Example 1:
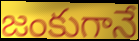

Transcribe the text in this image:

జంకుగానే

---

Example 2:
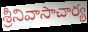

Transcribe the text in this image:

శ్రీనివాసాచార్య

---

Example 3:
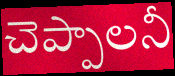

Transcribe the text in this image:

చెప్పాలనీ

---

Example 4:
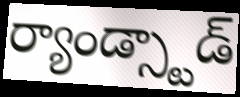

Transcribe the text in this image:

ర్యాండ్స్టాడ్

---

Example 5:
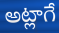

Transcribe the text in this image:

అట్లాగే